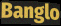
Banglo